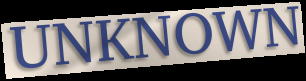
UNKNOWN